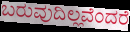
ಬರುವುದಿಲ್ಲವೆಂದರೆ